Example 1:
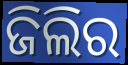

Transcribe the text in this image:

ଜିଲିର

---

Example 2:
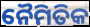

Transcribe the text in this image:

ନୈମିତିକ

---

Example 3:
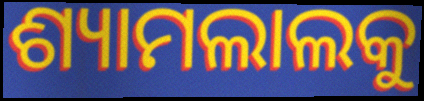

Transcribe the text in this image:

ଶ୍ୟାମଲାଲକୁ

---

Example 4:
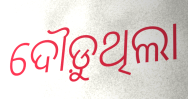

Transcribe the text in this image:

ଦୌଡ଼ୁଥିଲା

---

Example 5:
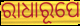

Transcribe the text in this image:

ରାଧାରୂପେ